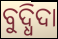
ବୁଦ୍ଧିଦା